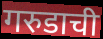
गरुडाची